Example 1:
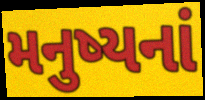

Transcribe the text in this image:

મનુષ્યનાં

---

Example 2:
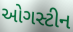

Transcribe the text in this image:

ઓગસ્ટીન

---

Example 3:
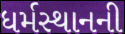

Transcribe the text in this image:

ધર્મસ્થાનની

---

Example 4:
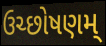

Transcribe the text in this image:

ઉચ્છોષણમ્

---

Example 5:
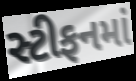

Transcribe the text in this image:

સ્ટીફનમાં